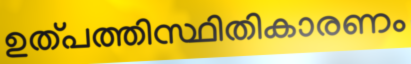
ഉത്പത്തിസ്ഥിതികാരണം